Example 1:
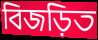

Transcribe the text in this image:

বিজড়িত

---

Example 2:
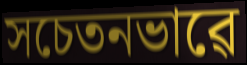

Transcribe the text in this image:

সচেতনভাৱে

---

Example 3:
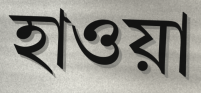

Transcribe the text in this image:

হাওয়া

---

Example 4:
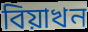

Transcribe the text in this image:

বিয়াখন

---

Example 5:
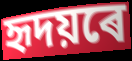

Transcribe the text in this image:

হৃদয়ৰে